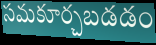
సమకూర్చబడడం